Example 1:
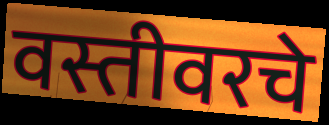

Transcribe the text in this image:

वस्तीवरचे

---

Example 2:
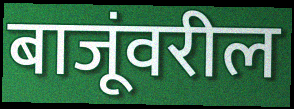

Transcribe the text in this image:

बाजूंवरील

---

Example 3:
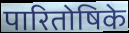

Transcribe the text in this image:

पारितोषिके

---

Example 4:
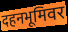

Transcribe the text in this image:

दहनभूमिवर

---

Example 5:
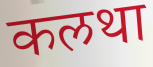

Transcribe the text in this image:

कलथा